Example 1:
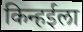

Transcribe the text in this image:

किन्हईला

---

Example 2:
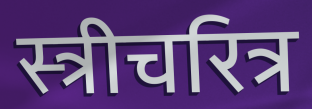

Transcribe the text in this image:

स्त्रीचरित्र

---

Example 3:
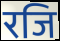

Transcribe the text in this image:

रजि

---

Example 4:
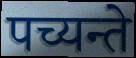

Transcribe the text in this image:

पच्यन्ते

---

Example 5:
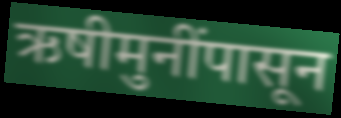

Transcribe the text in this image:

ऋषीमुनींपासून